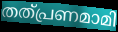
തത്പ്രണമാമി